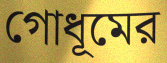
গোধূমের